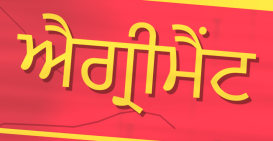
ਐਗ੍ਰੀਮੈਂਟ